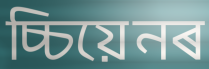
চ্চিয়েনৰ